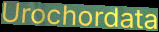
Urochordata